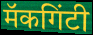
मॅकगिंटी